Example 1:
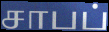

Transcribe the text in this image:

சாபப்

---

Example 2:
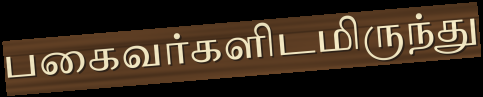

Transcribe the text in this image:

பகைவர்களிடமிருந்து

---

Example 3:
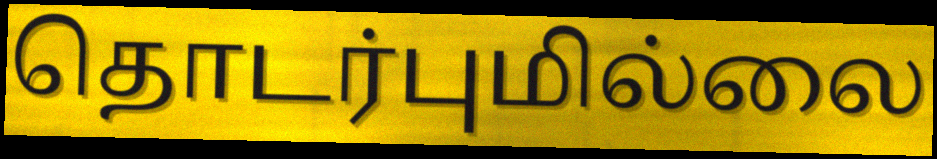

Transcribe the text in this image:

தொடர்புமில்லை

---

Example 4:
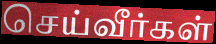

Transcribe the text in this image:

செய்வீர்கள்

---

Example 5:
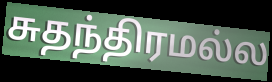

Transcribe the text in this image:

சுதந்திரமல்ல